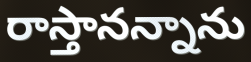
రాస్తానన్నాను